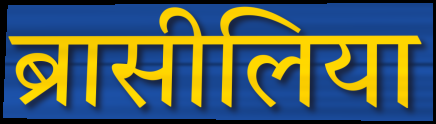
ब्रासीलिया